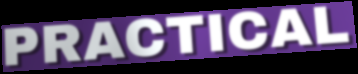
PRACTICAL